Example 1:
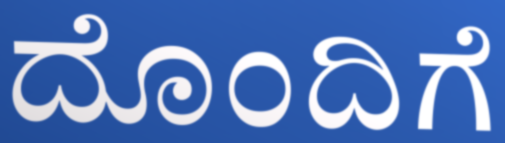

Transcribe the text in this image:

ದೊಂದಿಗೆ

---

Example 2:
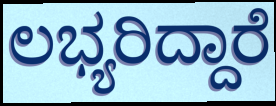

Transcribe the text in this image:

ಲಭ್ಯರಿದ್ದಾರೆ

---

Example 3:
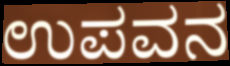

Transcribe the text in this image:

ಉಪವನ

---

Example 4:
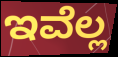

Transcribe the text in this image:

ಇವೆಲ್ಲ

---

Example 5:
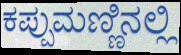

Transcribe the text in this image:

ಕಪ್ಪುಮಣ್ಣಿನಲ್ಲಿ